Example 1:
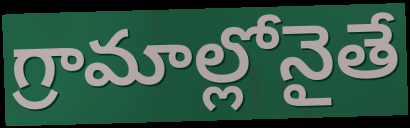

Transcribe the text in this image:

గ్రామాల్లోనైతే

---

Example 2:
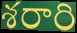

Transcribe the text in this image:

శరారి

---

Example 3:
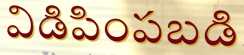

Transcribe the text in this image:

విడిపింపబడి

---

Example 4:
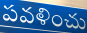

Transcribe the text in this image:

పవళించు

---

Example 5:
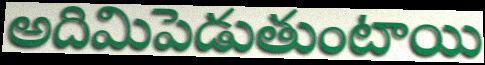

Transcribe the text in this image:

అదిమిపెడుతుంటాయి